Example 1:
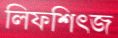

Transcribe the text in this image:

লিফশিৎজ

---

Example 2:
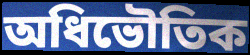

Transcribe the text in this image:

অধিভৌতিক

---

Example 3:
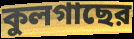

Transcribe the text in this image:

কুলগাছের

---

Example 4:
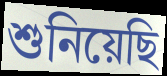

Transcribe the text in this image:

শুনিয়েছি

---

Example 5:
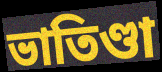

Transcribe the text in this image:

ভাতিণ্ডা